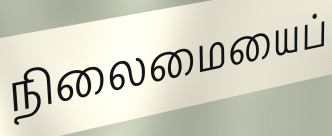
நிலைமையைப்